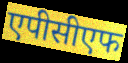
एपीसीएफ